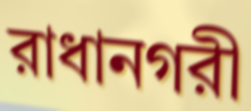
রাধানগরী